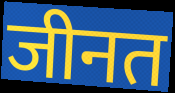
जीनत